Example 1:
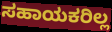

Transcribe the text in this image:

ಸಹಾಯಕರಿಲ್ಲ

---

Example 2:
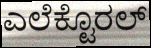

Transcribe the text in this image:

ಎಲೆಕ್ಟೊರಲ್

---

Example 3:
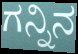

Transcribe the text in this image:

ಗನ್ನಿನ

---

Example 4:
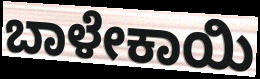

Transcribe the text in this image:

ಬಾಳೇಕಾಯಿ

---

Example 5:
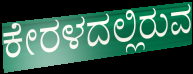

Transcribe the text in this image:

ಕೇರಳದಲ್ಲಿರುವ